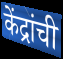
केंद्रांची